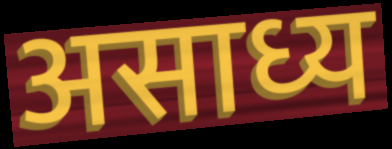
असाध्य